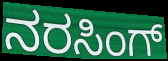
ನರಸಿಂಗ್